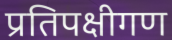
प्रतिपक्षीगण